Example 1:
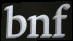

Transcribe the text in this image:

bnf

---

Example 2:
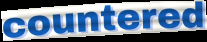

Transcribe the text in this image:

countered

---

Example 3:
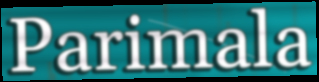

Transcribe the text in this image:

Parimala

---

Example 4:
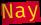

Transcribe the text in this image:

Nay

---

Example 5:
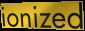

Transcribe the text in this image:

ionized